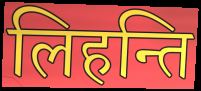
लिहन्ति